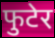
फुटेर